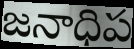
జనాధిప